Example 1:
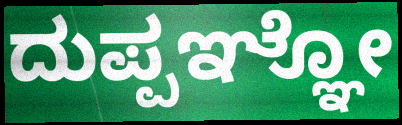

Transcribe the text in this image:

ದುಪ್ಪಞ್ಞೋ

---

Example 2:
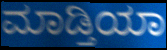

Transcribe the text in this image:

ಮಾಡ್ತಿಯಾ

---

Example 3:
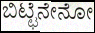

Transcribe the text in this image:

ಬಿಟ್ಟೆನೇನೋ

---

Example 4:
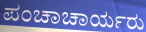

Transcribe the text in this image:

ಪಂಚಾಚಾರ್ಯರು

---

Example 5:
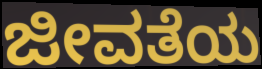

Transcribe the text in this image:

ಜೀವತೆಯ